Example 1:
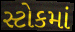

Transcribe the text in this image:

સ્ટોકમાં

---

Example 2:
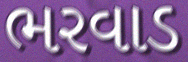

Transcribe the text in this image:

ભરવાડ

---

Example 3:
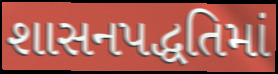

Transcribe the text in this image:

શાસનપદ્ધતિમાં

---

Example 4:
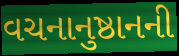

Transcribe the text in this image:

વચનાનુષ્ઠાનની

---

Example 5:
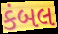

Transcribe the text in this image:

કંબલ